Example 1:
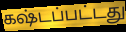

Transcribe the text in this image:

கஷ்டப்பட்டது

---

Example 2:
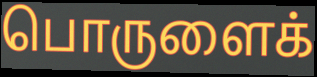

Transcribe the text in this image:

பொருளைக்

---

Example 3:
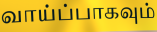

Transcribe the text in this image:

வாய்ப்பாகவும்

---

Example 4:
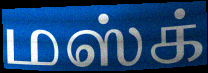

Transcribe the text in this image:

மஸ்க்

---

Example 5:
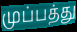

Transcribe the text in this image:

முப்பத்து